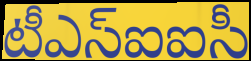
టీఎస్ఐఐసీ